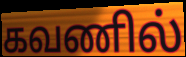
கவணில்